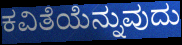
ಕವಿತೆಯೆನ್ನುವುದು